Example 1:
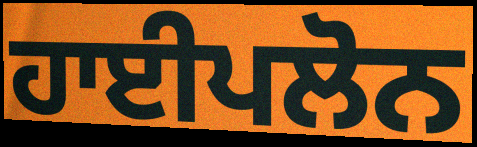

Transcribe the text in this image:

ਹਾਈਪਲੋਨ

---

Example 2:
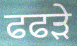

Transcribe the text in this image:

ਫਫੜੇ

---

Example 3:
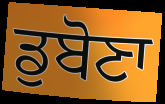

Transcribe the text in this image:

ਡੁਬੋਣਾ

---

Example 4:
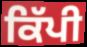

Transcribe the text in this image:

ਕਿੱਪੀ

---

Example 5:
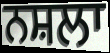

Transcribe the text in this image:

ਨਸ਼ਲਾ